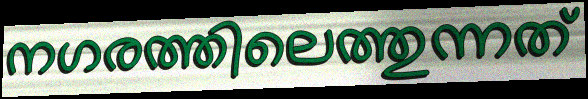
നഗരത്തിലെത്തുന്നത്